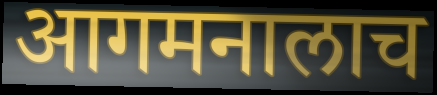
आगमनालाच